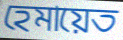
হেমায়েত